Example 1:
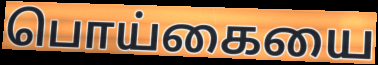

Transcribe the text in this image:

பொய்கையை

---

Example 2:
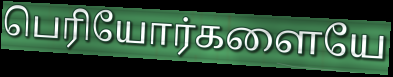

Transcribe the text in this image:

பெரியோர்களையே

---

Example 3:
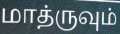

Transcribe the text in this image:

மாத்ருவும்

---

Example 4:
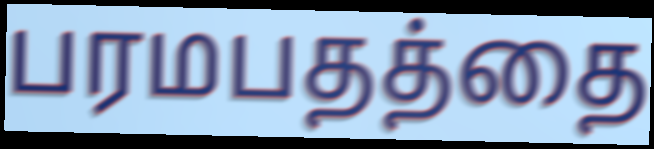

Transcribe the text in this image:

பரமபதத்தை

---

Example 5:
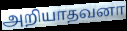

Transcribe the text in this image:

அறியாதவனா